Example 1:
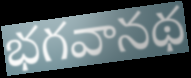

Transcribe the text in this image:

భగవానథ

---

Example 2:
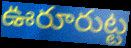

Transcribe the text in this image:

ఊరూరుట్ట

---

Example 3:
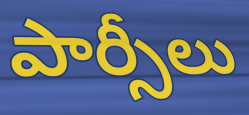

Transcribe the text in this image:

పార్సీలు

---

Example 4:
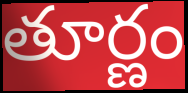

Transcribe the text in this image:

తూర్ణం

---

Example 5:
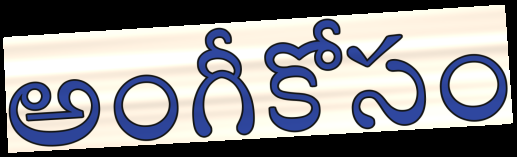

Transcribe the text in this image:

అంగీకోసం